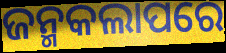
ଜନ୍ମକଲାପରେ